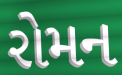
રોમન